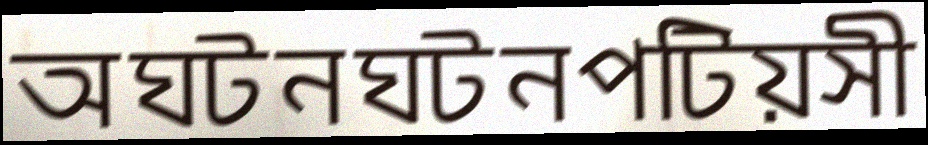
অঘটনঘটনপটিয়সী